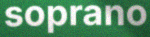
soprano